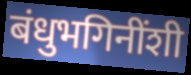
बंधुभगिनींशी